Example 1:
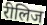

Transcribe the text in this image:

रीलिज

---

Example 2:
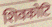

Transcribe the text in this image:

शिवकोटि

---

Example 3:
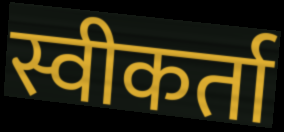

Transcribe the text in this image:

स्वीकर्ता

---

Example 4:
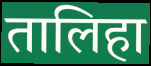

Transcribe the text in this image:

तालिहा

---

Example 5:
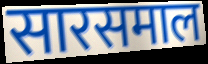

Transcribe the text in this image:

सारसमाल